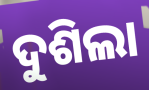
ଦୁଶିଲା